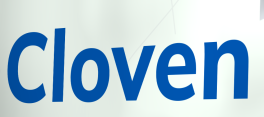
Cloven